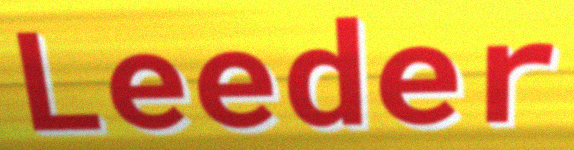
Leeder